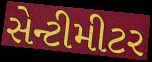
સેન્ટીમીટર